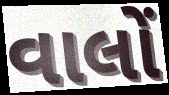
વાલોં